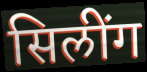
सिलींग